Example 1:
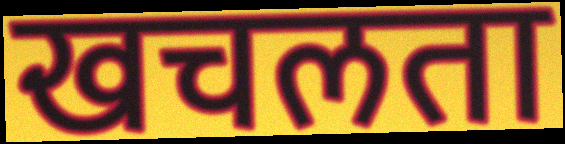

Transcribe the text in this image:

खचलता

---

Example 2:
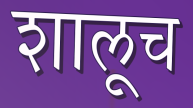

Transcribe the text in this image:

शालूच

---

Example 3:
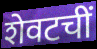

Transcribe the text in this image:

शेवटचीं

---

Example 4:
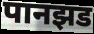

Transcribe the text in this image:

पानझड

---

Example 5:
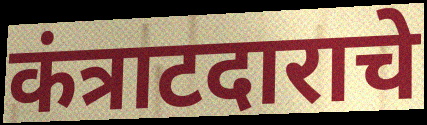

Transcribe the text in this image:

कंत्राटदाराचे